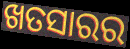
ଖତସାରର